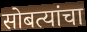
सोबत्यांचा